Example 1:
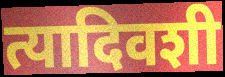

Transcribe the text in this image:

त्यादिवशी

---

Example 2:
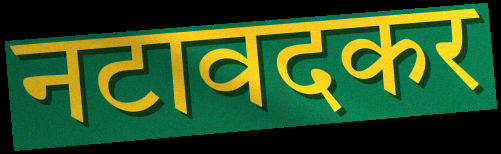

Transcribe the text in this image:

नटावदकर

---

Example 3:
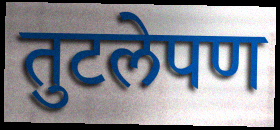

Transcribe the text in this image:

तुटलेपण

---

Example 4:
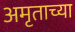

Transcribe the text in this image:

अमृताच्या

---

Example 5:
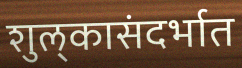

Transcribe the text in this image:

शुल्कासंदर्भात